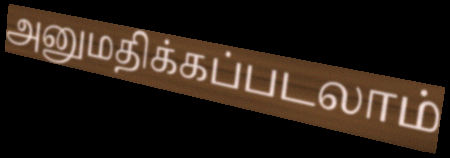
அனுமதிக்கப்படலாம்